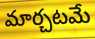
మార్చటమే